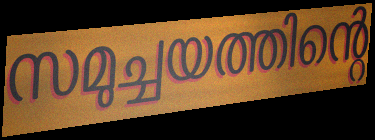
സമുച്ചയത്തിന്റെ